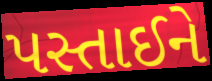
પસ્તાઈને